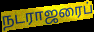
நடராஜரைப்